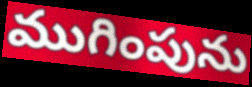
ముగింపును